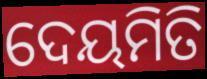
ଦେୟମିତି